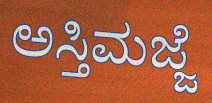
ಅಸ್ತಿಮಜ್ಜೆ